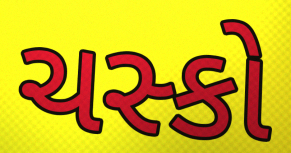
ચસ્કો